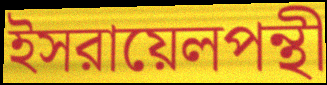
ইসরায়েলপন্থী